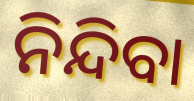
ନିନ୍ଦିବା